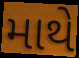
માથે